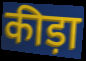
कीड़ा